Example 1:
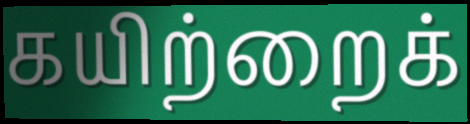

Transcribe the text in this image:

கயிற்றைக்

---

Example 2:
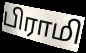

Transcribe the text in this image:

பிராமி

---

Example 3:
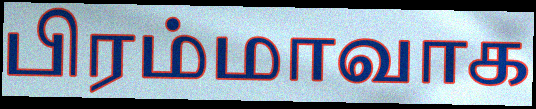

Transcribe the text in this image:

பிரம்மாவாக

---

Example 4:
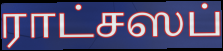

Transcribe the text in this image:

ராட்சஸப்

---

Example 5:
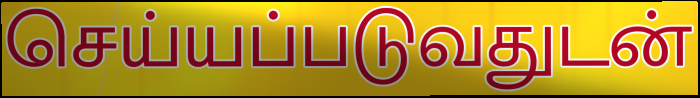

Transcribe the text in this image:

செய்யப்படுவதுடன்